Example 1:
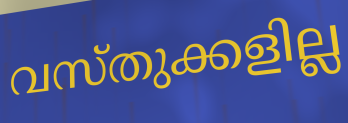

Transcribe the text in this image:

വസ്തുക്കളില്ല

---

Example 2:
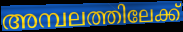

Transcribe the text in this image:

അമ്പലത്തിലേക്ക്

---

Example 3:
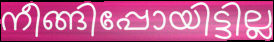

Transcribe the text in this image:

നീങ്ങിപ്പോയിട്ടില്ല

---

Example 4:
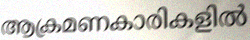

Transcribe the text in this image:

ആക്രമണകാരികളിൽ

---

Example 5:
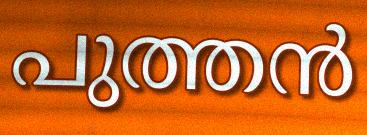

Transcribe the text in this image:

പുത്തൻ